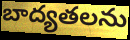
బాద్యతలను